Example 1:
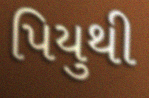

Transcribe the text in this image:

પિયુથી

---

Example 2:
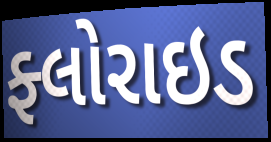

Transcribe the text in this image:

ફ્લોરાઇડ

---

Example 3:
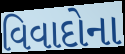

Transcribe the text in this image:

વિવાદોના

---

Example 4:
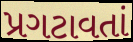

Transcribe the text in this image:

પ્રગટાવતાં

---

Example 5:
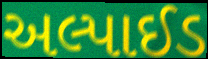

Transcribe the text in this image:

અલ્પાઈડ